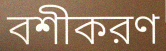
বশীকরণ